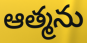
ఆత్మను